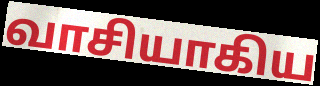
வாசியாகிய